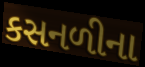
કસનળીના